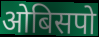
ओबिसपो